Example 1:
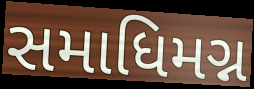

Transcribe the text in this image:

સમાધિમગ્ન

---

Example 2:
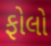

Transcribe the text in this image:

ફોલો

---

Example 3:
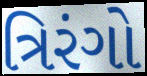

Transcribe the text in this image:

ત્રિરંગો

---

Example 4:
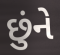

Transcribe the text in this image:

છુંને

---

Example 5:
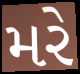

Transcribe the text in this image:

મરે